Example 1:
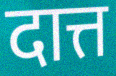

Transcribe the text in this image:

दात्त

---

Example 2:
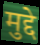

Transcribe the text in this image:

मुद्दे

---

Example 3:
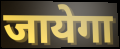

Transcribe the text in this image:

जायेगा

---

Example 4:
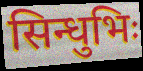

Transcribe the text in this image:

सिन्धुभिः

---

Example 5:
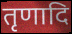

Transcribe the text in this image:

तृणादि